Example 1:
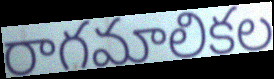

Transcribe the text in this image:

రాగమాలికల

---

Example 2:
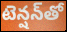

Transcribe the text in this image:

టెన్షన్‌తో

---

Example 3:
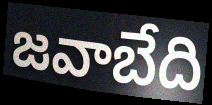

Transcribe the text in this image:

జవాబేది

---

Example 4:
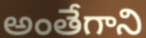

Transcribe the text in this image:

అంతేగాని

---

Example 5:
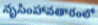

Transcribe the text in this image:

నృసింహావతారంలో